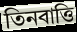
তিনবাত্তি